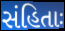
સંહિતાઃ